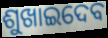
ଶୁଖାଇଦେବ